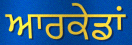
ਆਰਕੇਡਾਂ